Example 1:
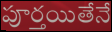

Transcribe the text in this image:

పూర్తయితేనే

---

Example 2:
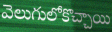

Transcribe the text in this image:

వెలుగులోకొచ్చాయి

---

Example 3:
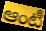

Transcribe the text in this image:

ఆంటీ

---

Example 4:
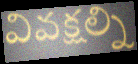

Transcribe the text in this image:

వివక్షల్ని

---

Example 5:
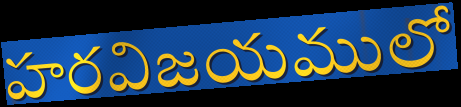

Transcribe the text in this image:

హరవిజయములో